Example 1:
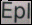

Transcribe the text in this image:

Epl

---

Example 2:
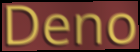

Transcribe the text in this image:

Deno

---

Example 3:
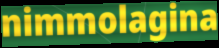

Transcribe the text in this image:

nimmolagina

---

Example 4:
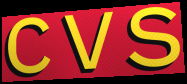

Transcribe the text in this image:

cvs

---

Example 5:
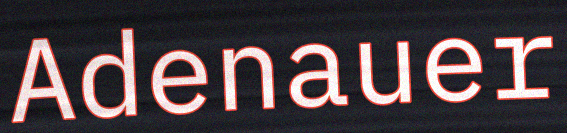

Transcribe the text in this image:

Adenauer